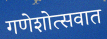
गणेशोत्सवात